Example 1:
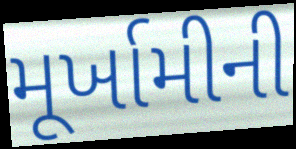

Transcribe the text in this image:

મૂર્ખામીની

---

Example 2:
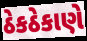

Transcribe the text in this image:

ઠેકઠેકાણે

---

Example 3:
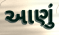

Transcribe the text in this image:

આણું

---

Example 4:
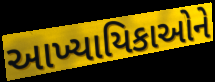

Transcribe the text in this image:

આખ્યાયિકાઓને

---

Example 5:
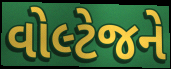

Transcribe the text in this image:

વોલ્ટેજને